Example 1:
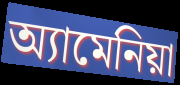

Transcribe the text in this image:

অ্যামেনিয়া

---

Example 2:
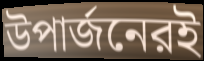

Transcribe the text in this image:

উপার্জনেরই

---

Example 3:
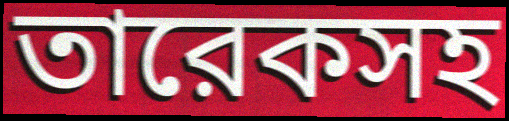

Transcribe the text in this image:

তারেকসহ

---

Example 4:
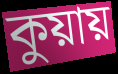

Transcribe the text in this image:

কুয়ায়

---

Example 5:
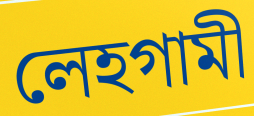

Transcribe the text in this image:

লেহগামী